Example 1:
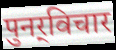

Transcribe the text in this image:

पुनर्विचार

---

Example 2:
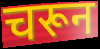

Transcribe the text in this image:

चरून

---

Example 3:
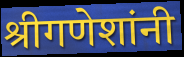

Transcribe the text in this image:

श्रीगणेशांनी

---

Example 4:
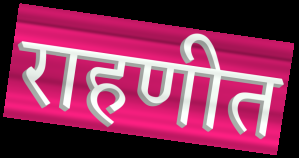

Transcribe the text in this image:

राहणीत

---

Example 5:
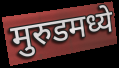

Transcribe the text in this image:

मुरुडमध्ये